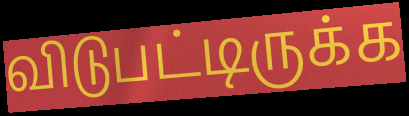
விடுபட்டிருக்க